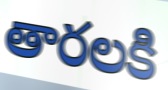
తారలకి